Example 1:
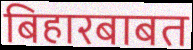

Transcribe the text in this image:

बिहारबाबत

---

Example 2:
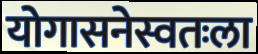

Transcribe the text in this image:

योगासनेस्वतःला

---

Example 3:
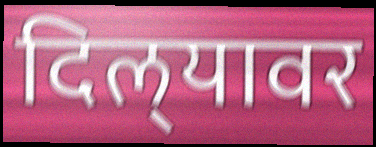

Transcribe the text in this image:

दिल्यावर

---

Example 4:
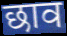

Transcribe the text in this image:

छाव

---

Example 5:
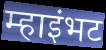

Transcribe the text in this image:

म्हाइंभट